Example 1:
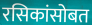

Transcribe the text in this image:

रसिकांसोबत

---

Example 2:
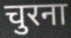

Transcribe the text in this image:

चुरना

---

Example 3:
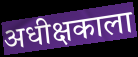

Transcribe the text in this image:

अधीक्षकाला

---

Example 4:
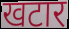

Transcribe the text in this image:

खटार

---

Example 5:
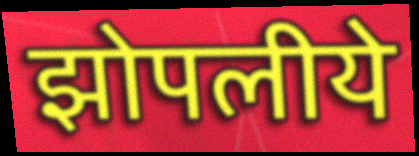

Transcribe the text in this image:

झोपलीये